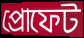
প্রোফেট